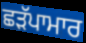
ਛੜੱਪਾਮਾਰ